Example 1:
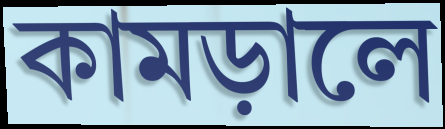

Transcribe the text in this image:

কামড়ালে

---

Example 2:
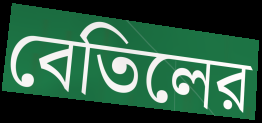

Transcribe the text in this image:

বেতিলের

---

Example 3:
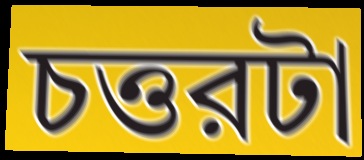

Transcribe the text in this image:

চত্তরটা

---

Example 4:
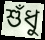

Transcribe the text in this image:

শুঁধু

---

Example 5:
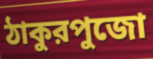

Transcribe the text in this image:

ঠাকুরপুজো